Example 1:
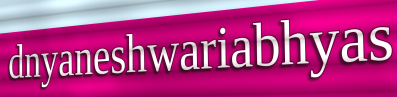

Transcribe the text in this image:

dnyaneshwariabhyas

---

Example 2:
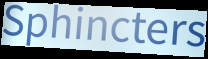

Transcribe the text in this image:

Sphincters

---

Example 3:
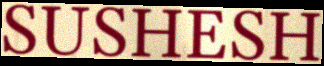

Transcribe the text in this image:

SUSHESH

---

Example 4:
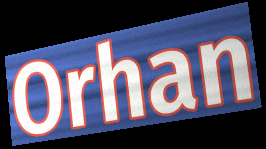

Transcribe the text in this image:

Orhan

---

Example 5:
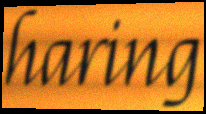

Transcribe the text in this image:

haring